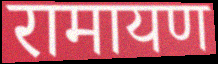
रामायण